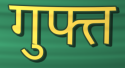
गुफ्त